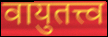
वायुतत्त्व